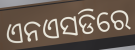
ଏନଏସଡିରେ